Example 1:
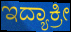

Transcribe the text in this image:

ಇದ್ಯಾಕ್ರೀ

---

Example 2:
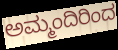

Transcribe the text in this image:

ಅಮ್ಮಂದಿರಿಂದ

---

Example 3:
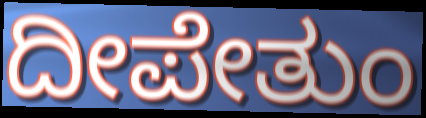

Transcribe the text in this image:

ದೀಪೇತುಂ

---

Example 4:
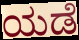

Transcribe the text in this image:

ಯಡೆ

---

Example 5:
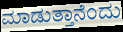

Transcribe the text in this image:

ಮಾಡುತ್ತಾನೆಂದು